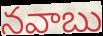
నవాబు